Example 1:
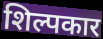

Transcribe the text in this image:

शिल्पकार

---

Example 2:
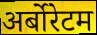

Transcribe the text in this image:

अर्बोरेटम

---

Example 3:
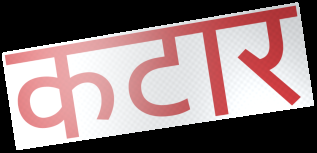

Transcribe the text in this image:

कटार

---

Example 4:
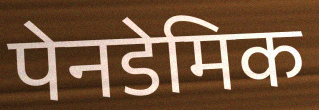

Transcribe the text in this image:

पेनडेमिक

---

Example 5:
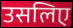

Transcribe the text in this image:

उसलिए